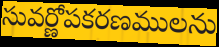
సువర్ణోపకరణములను